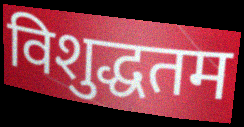
विशुद्धतम